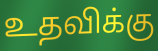
உதவிக்கு